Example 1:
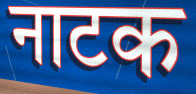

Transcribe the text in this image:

नाटक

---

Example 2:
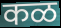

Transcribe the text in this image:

कळ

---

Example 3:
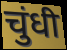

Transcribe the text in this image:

चुंधी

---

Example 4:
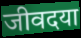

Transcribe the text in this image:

जीवदया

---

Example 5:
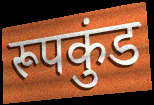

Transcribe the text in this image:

रूपकुंड